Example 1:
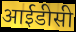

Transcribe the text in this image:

आईडीसी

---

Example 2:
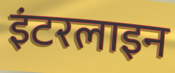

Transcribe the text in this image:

इंटरलाइन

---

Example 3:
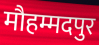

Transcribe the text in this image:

मौहम्मदपुर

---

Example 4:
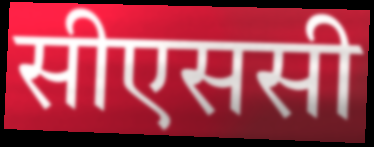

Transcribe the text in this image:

सीएससी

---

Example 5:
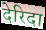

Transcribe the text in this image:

देरिदा